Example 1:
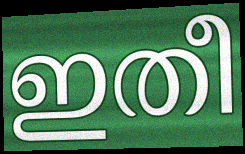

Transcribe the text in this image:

ഇതീ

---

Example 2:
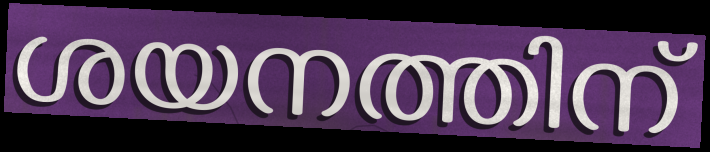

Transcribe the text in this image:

ശയനത്തിന്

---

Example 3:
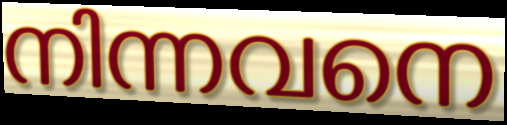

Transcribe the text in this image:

നിന്നവനെ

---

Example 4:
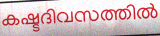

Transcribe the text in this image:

കഷ്ടദിവസത്തിൽ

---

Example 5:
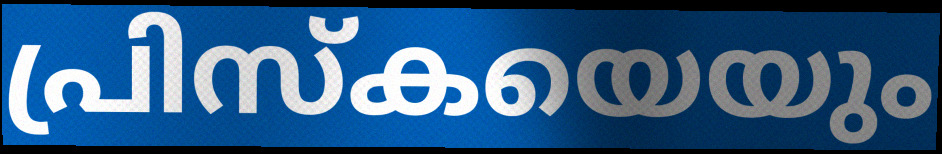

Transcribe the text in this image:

പ്രിസ്കയെയും